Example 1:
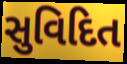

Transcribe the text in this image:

સુવિદિત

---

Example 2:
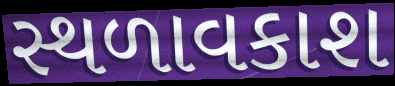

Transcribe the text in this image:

સ્થળાવકાશ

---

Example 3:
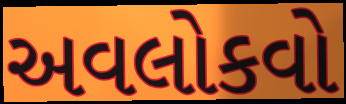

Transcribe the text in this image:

અવલોકવો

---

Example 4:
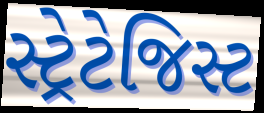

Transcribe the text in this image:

સ્ટ્રેટેજિસ્ટ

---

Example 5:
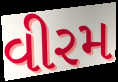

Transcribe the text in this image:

વીરમ